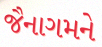
જૈનાગમને